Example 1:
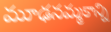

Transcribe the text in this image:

మూఢనమ్మకాన్ని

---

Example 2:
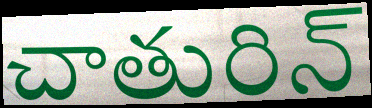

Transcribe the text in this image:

చాతురిన్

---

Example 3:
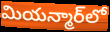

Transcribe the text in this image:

మియన్మార్‌లో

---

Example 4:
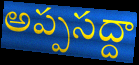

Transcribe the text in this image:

అప్పసద్దా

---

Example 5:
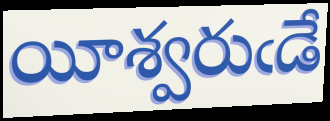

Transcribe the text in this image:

యీశ్వరుఁడే